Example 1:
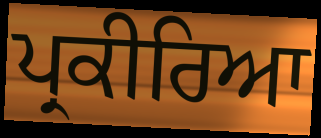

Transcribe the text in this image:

ਪ੍ਰਕੀਰਿਆ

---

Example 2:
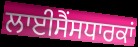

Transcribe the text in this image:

ਲਾਈਸੈਂਸਧਾਰਕਾਂ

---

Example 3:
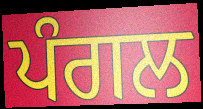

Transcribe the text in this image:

ਪੰਗਲ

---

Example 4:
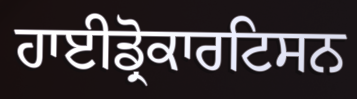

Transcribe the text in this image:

ਹਾਈਡ੍ਰੋਕਾਰਟਿਸਨ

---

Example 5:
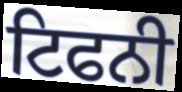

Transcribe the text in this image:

ਟਿਫਨੀ